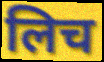
लिच